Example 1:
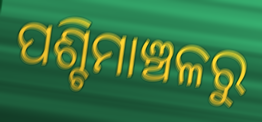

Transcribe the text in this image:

ପଶ୍ଚିମାଞ୍ଚଳରୁ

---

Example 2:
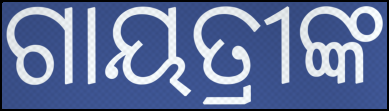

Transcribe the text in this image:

ଗାୟତ୍ରୀଙ୍କ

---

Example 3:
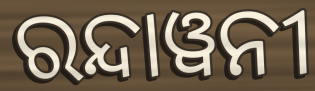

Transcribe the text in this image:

ରନ୍ଦାୱନୀ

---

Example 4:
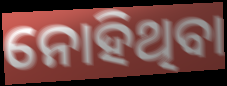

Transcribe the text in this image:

ନୋହିଥିବା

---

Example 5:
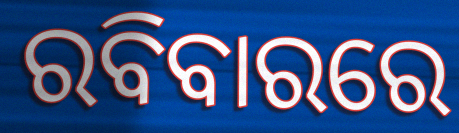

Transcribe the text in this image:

ରବିବାରରେ